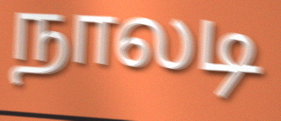
நாலடி